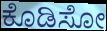
ಕೊಡಿಸೋ